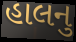
હાલનુ